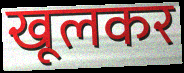
खूलकर